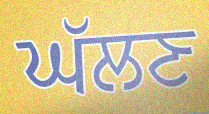
ਘੱਲਣ